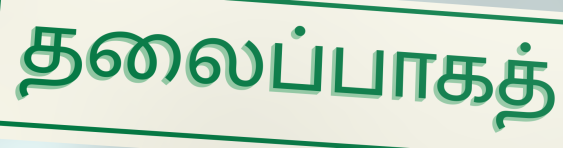
தலைப்பாகத்